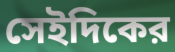
সেইদিকের